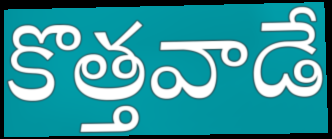
కొత్తవాడే